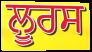
ਲੂਰਸ